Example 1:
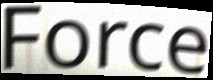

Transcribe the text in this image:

Force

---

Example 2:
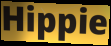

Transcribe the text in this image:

Hippie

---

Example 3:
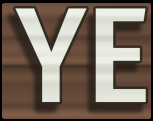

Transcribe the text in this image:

YE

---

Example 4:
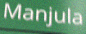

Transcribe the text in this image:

Manjula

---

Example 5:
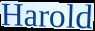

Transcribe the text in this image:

Harold